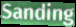
Sanding